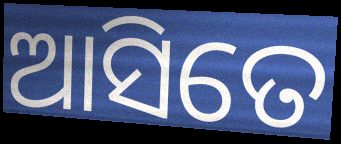
ଆସିତେ